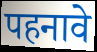
पहनावे